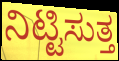
ನಿಟ್ಟಿಸುತ್ತ